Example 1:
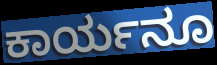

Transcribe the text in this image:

ಕಾರ್ಯನೂ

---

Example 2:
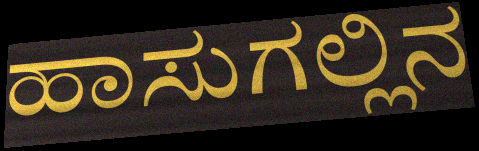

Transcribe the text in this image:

ಹಾಸುಗಲ್ಲಿನ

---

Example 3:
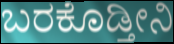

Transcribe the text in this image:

ಬರಕೊಡ್ತೀನಿ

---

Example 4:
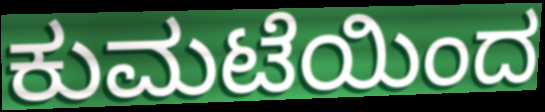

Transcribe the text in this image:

ಕುಮಟೆಯಿಂದ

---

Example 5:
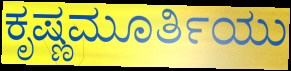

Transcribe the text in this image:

ಕೃಷ್ಣಮೂರ್ತಿಯು